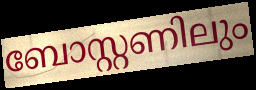
ബോസ്റ്റണിലും